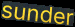
sunder